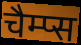
चैम्प्स